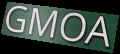
GMOA